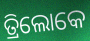
ତ୍ରିଲୋକେ